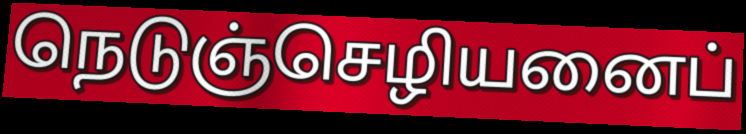
நெடுஞ்செழியனைப்